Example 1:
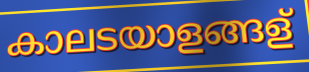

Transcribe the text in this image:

കാലടയാളങ്ങള്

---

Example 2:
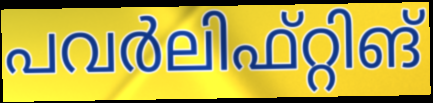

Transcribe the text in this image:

പവർലിഫ്റ്റിങ്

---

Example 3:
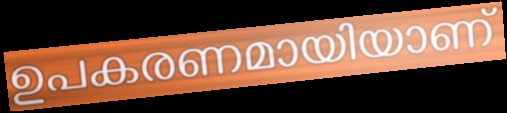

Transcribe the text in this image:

ഉപകരണമായിയാണ്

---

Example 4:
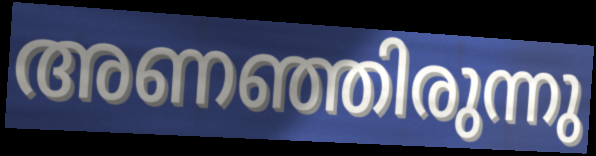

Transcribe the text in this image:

അണഞ്ഞിരുന്നു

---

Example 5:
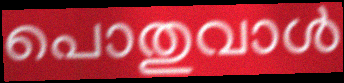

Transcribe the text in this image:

പൊതുവാൾ